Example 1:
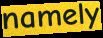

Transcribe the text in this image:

namely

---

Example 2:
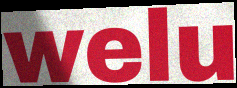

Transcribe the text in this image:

welu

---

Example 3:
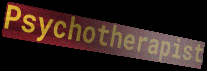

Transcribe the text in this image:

Psychotherapist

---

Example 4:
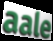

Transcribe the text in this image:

aale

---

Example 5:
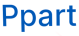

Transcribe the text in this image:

Ppart